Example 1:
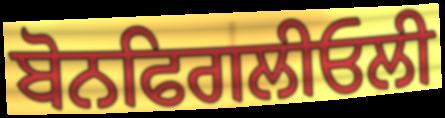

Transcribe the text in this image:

ਬੋਨਫਿਗਲੀਓਲੀ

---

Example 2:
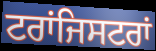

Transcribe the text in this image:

ਟਰਾਂਜਿਸਟਰਾਂ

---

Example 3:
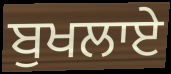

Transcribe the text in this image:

ਬੁਖਲਾਏ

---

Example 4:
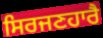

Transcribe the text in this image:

ਸਿਰਜਣਹਾਰੈ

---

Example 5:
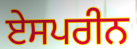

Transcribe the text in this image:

ਏਸਪਰੀਨ